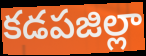
కడపజిల్లా